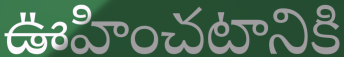
ఊహించటానికి